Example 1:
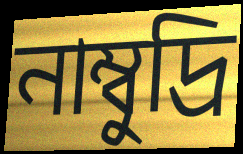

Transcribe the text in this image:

নাম্বুদ্রি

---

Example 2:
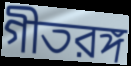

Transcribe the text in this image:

গীতরঙ্গ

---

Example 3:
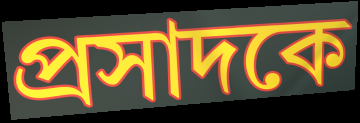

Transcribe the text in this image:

প্রসাদকে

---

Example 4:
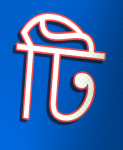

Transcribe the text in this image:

টি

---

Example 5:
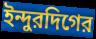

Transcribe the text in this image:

ইন্দুরদিগের